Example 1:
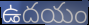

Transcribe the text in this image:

ఉదయం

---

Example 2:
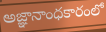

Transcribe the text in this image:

అజ్ఞానాంధకారంలో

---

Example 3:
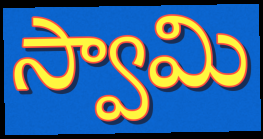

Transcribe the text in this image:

స్వామి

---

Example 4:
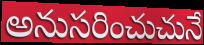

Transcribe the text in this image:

అనుసరించుచునే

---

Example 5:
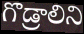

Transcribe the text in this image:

గొడ్రాలిని